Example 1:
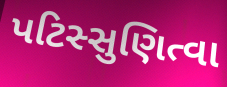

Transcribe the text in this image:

પટિસ્સુણિત્વા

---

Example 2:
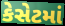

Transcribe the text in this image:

કેસેટમાં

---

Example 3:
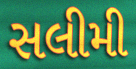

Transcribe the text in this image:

સલીમી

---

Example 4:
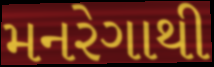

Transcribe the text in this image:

મનરેગાથી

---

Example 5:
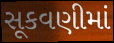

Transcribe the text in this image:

સૂકવણીમાં